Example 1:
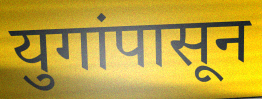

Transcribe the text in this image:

युगांपासून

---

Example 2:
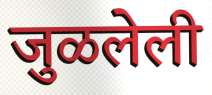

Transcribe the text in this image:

जुळलेली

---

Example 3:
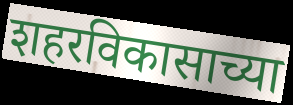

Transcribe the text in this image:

शहरविकासाच्या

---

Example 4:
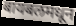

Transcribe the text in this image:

बायबलमधून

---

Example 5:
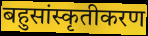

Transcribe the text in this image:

बहुसांस्कृतीकरण